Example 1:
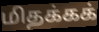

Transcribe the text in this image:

மிதக்கக்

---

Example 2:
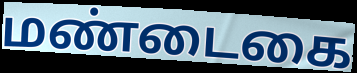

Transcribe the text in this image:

மண்டைகை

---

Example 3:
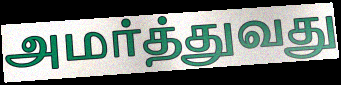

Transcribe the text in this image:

அமர்த்துவது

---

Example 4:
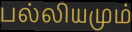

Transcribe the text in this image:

பல்லியமும்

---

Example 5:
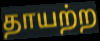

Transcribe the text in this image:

தாயற்ற